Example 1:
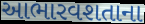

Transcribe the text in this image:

આભારવશતાના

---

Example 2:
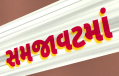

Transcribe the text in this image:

સમજાવટમાં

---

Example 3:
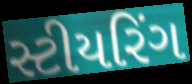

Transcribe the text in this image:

સ્ટીયરિંગ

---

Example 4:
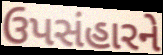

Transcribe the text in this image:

ઉપસંહારને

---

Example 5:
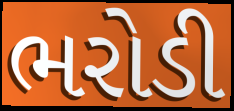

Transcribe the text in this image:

ભરોડી